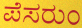
ಪೆಸರುಂ